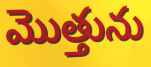
మొత్తును